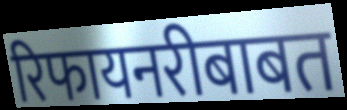
रिफायनरीबाबत